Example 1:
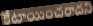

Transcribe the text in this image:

కేటాయించరాదని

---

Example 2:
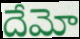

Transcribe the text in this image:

దేమో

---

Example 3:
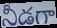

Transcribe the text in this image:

నీడగా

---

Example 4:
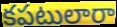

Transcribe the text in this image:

కపటులారా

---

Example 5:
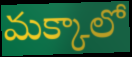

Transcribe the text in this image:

మక్కాలో